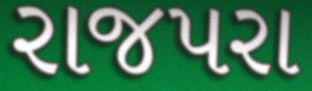
રાજપરા